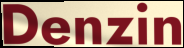
Denzin